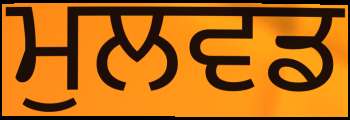
ਮੁਲਵਡ